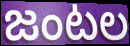
జంటల